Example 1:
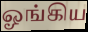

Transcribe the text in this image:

ஓங்கிய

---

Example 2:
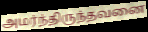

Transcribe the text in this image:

அமர்ந்திருந்தவனை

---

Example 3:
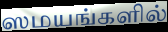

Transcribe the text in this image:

ஸமயங்களில்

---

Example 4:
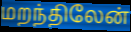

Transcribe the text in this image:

மறந்திலேன்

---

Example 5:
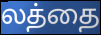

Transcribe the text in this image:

லத்தை